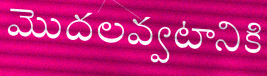
మొదలవ్వటానికి